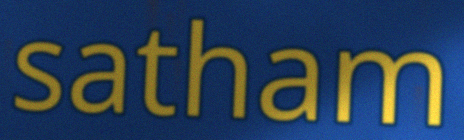
satham